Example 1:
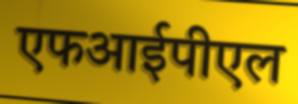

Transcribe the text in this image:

एफआईपीएल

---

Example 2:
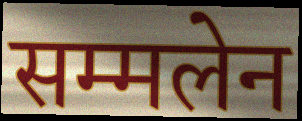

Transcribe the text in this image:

सम्मलेन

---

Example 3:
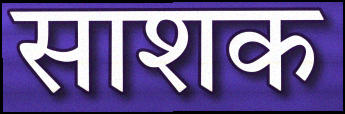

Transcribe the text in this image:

साशक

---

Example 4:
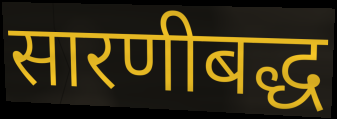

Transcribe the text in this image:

सारणीबद्ध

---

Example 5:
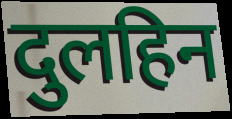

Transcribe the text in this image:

दुलहिन